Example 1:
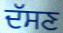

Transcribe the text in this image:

ਦੱਸਣ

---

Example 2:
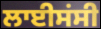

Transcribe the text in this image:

ਲਾਈਸਂਸੀ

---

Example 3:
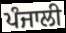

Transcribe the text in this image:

ਪੰਜਾਲੀ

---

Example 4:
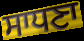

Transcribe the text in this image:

ਸਾਧਣਾ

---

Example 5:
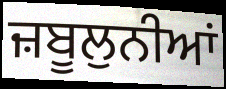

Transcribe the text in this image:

ਜ਼ਬੂਲੁਨੀਆਂ